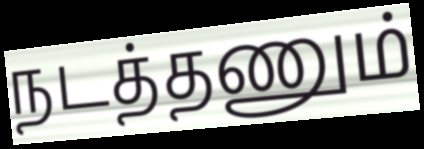
நடத்தணும்